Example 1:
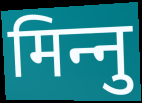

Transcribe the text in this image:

मिन्नु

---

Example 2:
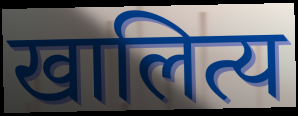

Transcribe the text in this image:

खालित्य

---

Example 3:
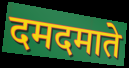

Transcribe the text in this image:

दमदमाते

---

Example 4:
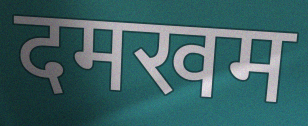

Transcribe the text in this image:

दमखम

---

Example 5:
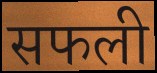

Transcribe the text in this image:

सफली